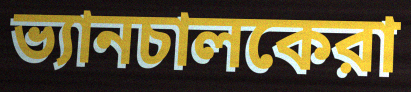
ভ্যানচালকেরা